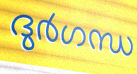
ദുർഗന്ധ